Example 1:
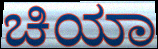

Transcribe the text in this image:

ಚಿಯಾ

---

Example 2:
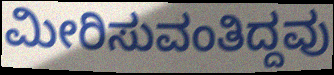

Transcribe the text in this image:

ಮೀರಿಸುವಂತಿದ್ದವು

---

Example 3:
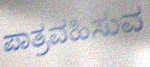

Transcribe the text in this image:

ಪಾತ್ರವಹಿಸುವ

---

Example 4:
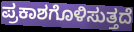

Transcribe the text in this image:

ಪ್ರಕಾಶಗೊಳಿಸುತ್ತದೆ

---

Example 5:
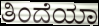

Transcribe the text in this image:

ತಿಂದೆಯಾ